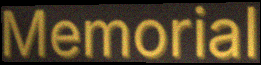
Memorial